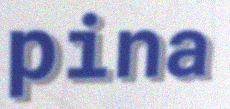
pina